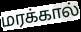
மரக்கால்